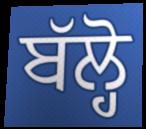
ਬੱਲ੍ਹੋ